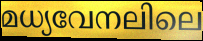
മധ്യവേനലിലെ